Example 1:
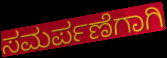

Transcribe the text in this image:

ಸಮರ್ಪಣೆಗಾಗಿ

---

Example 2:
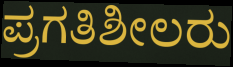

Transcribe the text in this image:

ಪ್ರಗತಿಶೀಲರು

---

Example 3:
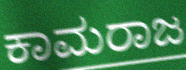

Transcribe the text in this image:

ಕಾಮರಾಜ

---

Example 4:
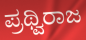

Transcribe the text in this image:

ಪ್ರಥ್ವಿರಾಜ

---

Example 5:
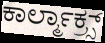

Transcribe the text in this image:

ಕಾರ್ಲ್ಮಾಕ್ರ್ಸ್